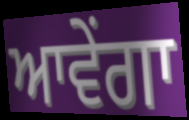
ਆਵੇਂਗਾ